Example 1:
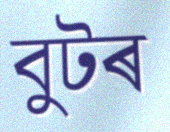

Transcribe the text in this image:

বুটৰ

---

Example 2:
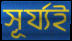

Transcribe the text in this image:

সূৰ্য্যই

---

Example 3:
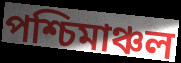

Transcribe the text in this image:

পশ্চিমাঞ্চল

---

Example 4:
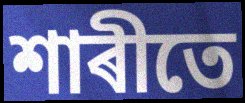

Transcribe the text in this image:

শাৰীতে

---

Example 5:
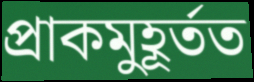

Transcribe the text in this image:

প্ৰাকমুহূৰ্তত